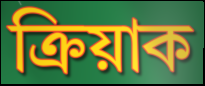
ক্ৰিয়াক